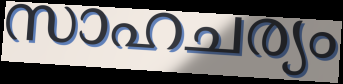
സാഹചര്യം